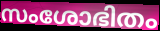
സംശോഭിതം